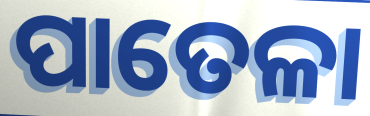
ପାତେଳା